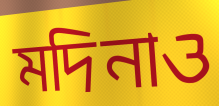
মদিনাও